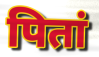
पितां